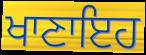
ਖਾਣਾਇਹ